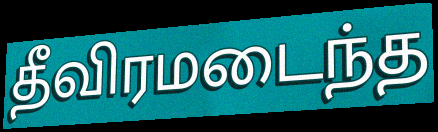
தீவிரமடைந்த